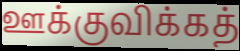
ஊக்குவிக்கத்